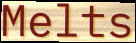
Melts